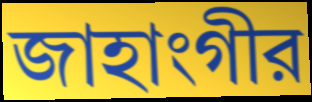
জাহাংগীর